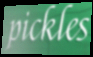
pickles